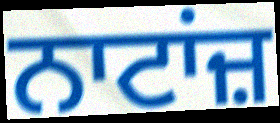
ਨਾਟਾਂਜ਼